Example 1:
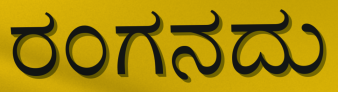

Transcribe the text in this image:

ರಂಗನದು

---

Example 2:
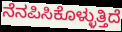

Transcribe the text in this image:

ನೆನಪಿಸಿಕೊಳ್ಳುತ್ತಿದೆ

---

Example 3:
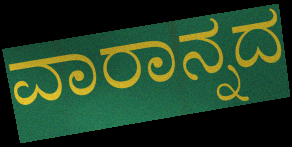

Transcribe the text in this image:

ವಾರಾನ್ನದ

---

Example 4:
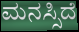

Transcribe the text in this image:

ಮನಸ್ಸಿದೆ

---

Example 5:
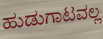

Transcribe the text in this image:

ಹುಡುಗಾಟವಲ್ಲ